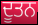
ਦੂਤਨ